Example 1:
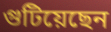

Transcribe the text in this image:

গুটিয়েছেন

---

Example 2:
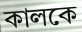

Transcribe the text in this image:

কালকে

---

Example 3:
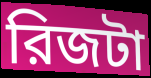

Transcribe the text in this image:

রিজটা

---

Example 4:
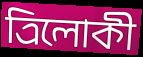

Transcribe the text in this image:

ত্রিলোকী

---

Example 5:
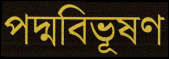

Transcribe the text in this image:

পদ্মবিভূষণ